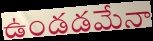
ఉండడమేనా